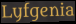
Lyfgenia